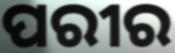
ପରୀର